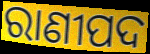
ରାଣୀପଦ